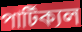
পার্টিক্যল